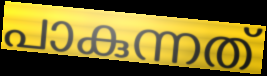
പാകുന്നത്